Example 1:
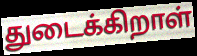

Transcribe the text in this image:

துடைக்கிறாள்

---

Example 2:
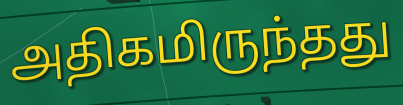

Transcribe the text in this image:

அதிகமிருந்தது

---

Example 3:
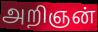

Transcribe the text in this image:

அறிஞன்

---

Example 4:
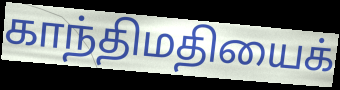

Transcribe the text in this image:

காந்திமதியைக்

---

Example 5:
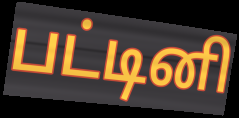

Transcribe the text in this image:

பட்டினி